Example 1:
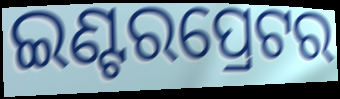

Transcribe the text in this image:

ଇଣ୍ଟରପ୍ରେଟର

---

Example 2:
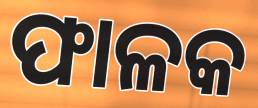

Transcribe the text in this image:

ଫାଳକ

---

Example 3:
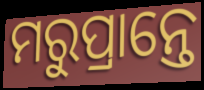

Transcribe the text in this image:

ମରୁପ୍ରାନ୍ତେ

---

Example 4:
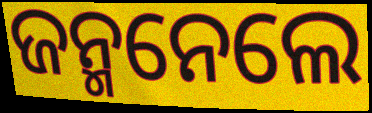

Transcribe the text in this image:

ଜନ୍ମନେଲେ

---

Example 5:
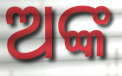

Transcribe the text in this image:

ଅଙ୍କ